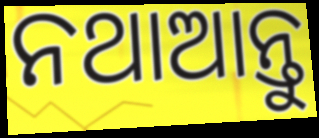
ନଥାଆନ୍ତୁ